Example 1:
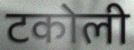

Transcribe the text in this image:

टकोली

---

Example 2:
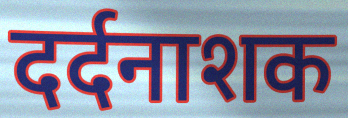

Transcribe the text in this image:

दर्दनाशक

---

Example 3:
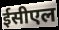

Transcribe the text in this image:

ईसीएल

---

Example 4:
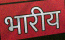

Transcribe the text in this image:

भारीय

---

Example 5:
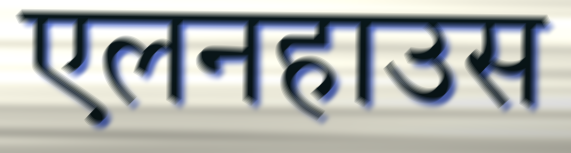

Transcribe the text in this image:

एलनहाउस